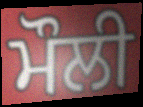
ਮੌਲੀ